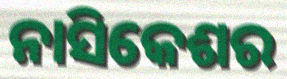
ନାସିକେଶର